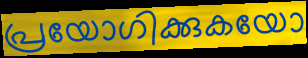
പ്രയോഗിക്കുകയോ